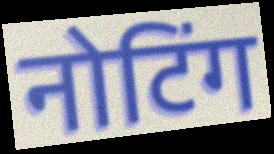
नोटिंग